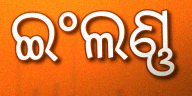
ଇଂଲଣ୍ଣ